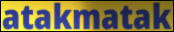
atakmatak